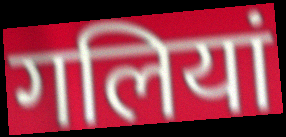
गलियां